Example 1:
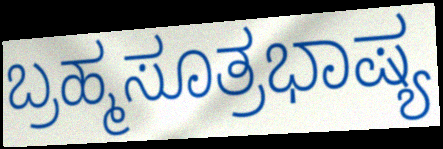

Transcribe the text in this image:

ಬ್ರಹ್ಮಸೂತ್ರಭಾಷ್ಯ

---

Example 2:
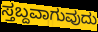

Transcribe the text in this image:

ಸ್ತಬ್ದವಾಗುವುದು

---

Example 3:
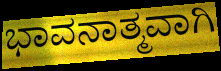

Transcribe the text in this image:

ಭಾವನಾತ್ಮವಾಗಿ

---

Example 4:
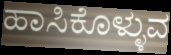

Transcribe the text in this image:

ಹಾಸಿಕೊಳ್ಳುವ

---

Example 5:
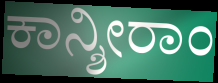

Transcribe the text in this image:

ಕಾನ್ಶೀರಾಂ